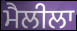
ਮੈਲੀਲਾ